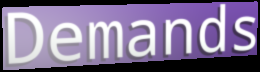
Demands